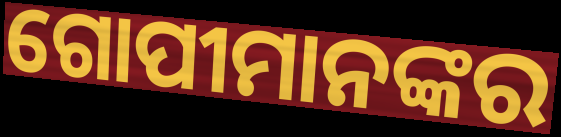
ଗୋପୀମାନଙ୍କର